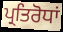
ਪ੍ਰਤਿਰੋਧਾਂ